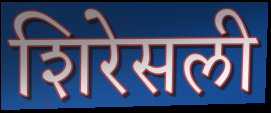
शिरेसली